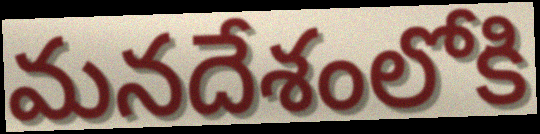
మనదేశంలోకి